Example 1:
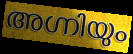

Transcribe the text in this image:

അഗ്നിയും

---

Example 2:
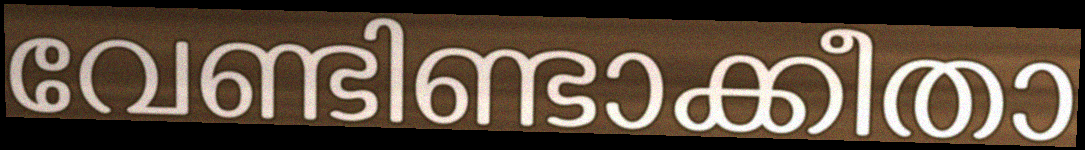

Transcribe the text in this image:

വേണ്ടിണ്ടാക്കീതാ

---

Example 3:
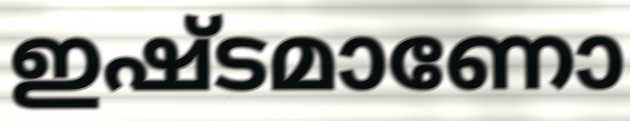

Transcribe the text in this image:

ഇഷ്ടമാണോ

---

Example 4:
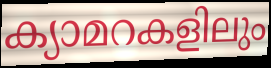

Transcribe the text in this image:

ക്യാമറകളിലും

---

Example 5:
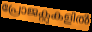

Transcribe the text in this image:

പ്രോജക്റ്റുകളിൽ